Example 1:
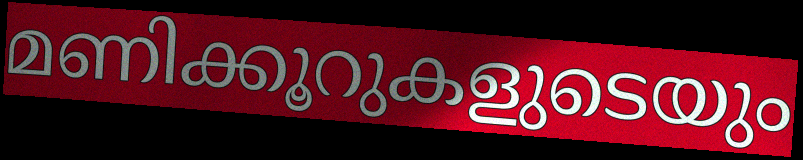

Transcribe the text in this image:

മണിക്കൂറുകളുടെയും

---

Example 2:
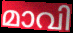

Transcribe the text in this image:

മാവി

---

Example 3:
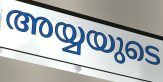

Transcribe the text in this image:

അയ്യയുടെ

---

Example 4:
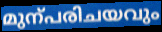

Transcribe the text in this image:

മുന്പരിചയവും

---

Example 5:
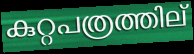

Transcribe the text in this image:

കുറ്റപത്രത്തില്